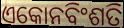
ଏକୋନବିଂଶତି